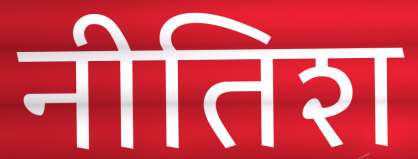
नीतिश